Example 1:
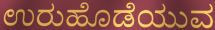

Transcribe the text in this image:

ಉರುಹೊಡೆಯುವ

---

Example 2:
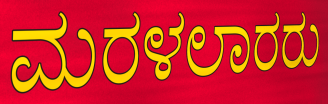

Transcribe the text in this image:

ಮರಳಲಾರರು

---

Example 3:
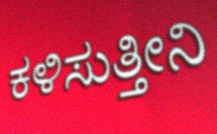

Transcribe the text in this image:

ಕಳಿಸುತ್ತೀನಿ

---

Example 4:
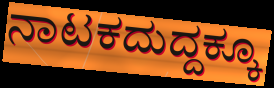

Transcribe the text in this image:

ನಾಟಕದುದ್ದಕ್ಕೂ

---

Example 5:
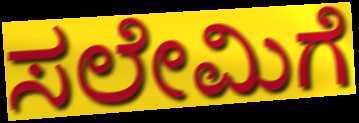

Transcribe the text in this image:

ಸಲೇಮಿಗೆ